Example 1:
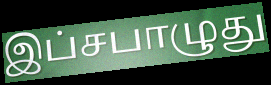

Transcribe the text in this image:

இப்சபாழுது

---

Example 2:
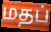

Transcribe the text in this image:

மதப்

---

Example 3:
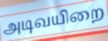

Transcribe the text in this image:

அடிவயிறை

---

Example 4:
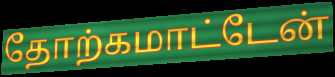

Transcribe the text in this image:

தோற்கமாட்டேன்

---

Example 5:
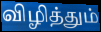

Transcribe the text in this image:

விழித்தும்